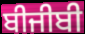
ਬੀਜੀਬੀ